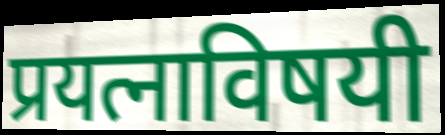
प्रयत्नाविषयी